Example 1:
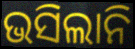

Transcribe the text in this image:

ଭସିଲାନି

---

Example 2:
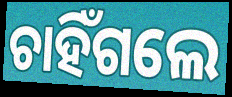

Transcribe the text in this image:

ଚାହିଁଗଲେ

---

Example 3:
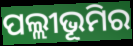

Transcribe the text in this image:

ପଲ୍ଲୀଭୂମିର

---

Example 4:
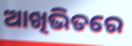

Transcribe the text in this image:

ଆଖିଭିତରେ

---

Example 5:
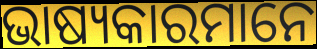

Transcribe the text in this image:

ଭାଷ୍ୟକାରମାନେ